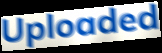
Uploaded